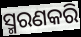
ସ୍ମରଣକରି